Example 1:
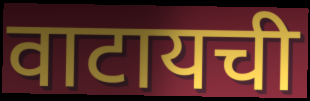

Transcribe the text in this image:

वाटायची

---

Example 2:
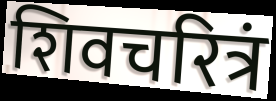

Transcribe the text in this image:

शिवचरित्रं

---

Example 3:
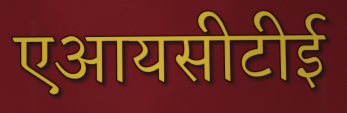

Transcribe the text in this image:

एआयसीटीई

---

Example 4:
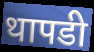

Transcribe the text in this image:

थापडी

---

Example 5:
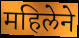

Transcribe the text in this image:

महिलेने